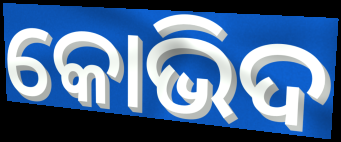
କୋଭିଦ